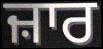
ਜ਼ਾਰ